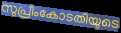
സുപ്രീംകോടതിയുടെ